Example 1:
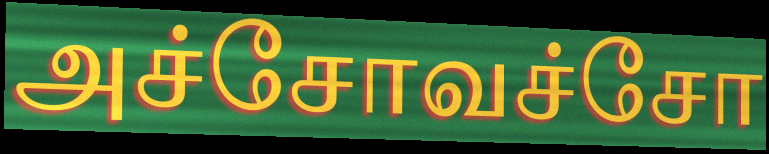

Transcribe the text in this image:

அச்சோவச்சோ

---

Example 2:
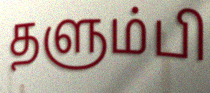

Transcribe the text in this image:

தளும்பி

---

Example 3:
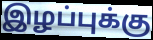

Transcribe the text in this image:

இழப்புக்கு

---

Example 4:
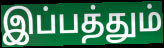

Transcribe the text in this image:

இப்பத்தும்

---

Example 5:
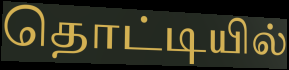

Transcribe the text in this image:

தொட்டியில்